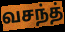
வசந்த்